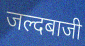
जल्दबाजी